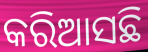
କରିଆସଛି